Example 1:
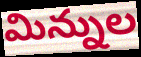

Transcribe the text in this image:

మిన్నుల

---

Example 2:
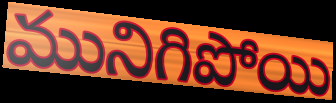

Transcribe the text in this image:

మునిగిపోయి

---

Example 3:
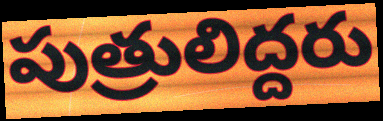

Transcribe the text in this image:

పుత్రులిద్దరు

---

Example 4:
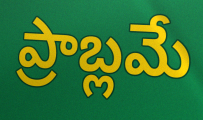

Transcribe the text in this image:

ప్రాబ్లమే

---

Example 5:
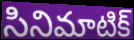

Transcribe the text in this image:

సినిమాటిక్